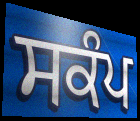
ਸਕੰਪ